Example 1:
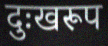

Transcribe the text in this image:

दुःखरूप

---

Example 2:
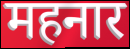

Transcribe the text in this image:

महनार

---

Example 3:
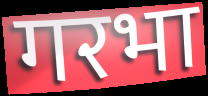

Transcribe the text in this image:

गरभा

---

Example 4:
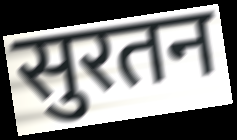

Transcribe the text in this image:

सुरतन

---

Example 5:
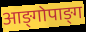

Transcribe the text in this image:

आङ्गोपाङ्ग